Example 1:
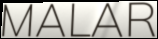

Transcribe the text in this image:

MALAR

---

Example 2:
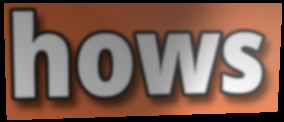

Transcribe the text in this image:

hows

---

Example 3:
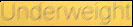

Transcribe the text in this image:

Underweight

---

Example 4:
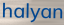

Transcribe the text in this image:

halyan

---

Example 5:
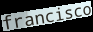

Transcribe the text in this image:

francisco